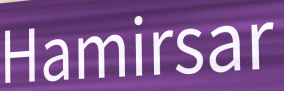
Hamirsar